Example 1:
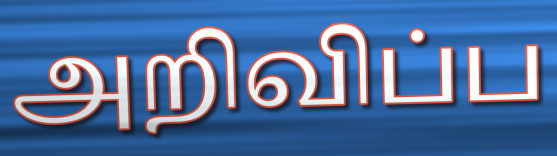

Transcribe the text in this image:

அறிவிப்ப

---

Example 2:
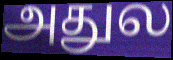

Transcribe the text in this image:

அதுல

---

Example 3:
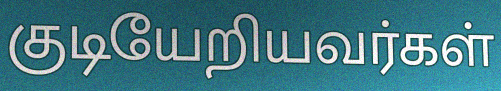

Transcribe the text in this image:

குடியேறியவர்கள்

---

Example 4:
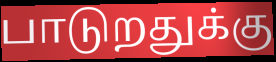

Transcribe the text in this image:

பாடுறதுக்கு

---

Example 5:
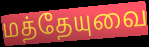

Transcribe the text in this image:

மத்தேயுவை